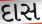
દાસ